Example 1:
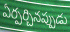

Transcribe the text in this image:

ఏర్పర్చినప్పుడు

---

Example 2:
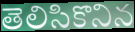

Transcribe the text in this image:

తెలిసికొనిన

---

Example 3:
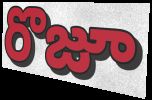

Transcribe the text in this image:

రొజూ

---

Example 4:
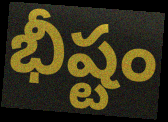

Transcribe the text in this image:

భీష్టం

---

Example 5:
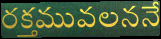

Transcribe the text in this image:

రక్తమువలననే